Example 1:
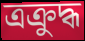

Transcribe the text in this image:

ত্রক্রুদ্ধ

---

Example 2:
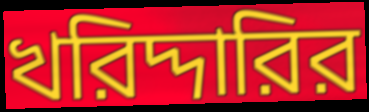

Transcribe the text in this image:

খরিদ্দারির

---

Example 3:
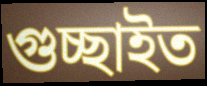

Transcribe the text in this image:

গুচ্ছাইত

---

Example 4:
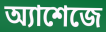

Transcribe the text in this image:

অ্যাশেজে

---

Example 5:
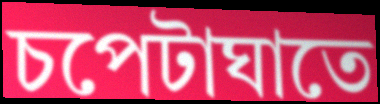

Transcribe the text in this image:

চপেটাঘাতে